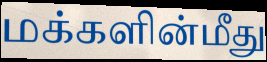
மக்களின்மீது